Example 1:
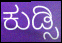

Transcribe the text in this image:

ಕುಡ್ಸಿ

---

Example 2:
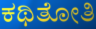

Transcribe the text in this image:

ಕಥಿತೋತಿ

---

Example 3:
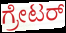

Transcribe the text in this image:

ಗ್ರೇಟರ್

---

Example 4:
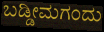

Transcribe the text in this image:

ಬಡ್ಡೀಮಗಂದು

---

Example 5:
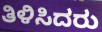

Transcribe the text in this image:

ತಿಳಿಸಿದರು